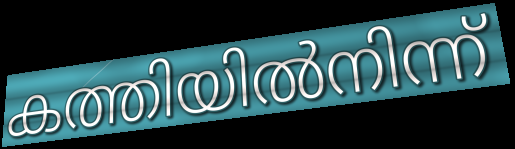
കത്തിയിൽനിന്ന്